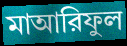
মাআরিফুল